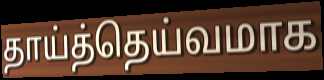
தாய்த்தெய்வமாக